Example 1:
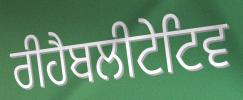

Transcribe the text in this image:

ਰੀਹੈਬਲੀਟੇਟਿਵ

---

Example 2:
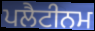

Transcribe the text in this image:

ਪਲੈਟੀਨਮ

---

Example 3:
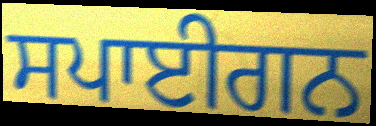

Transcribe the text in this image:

ਸਪਾਈਗਨ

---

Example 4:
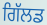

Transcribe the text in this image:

ਗਿੱਲਡ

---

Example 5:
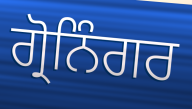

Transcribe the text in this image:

ਗ੍ਰੋਨਿੰਗਰ